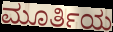
ಮೂರ್ತಿಯ